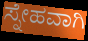
ಸ್ನೇಹವಾಗಿ